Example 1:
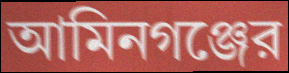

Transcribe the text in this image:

আমিনগঞ্জের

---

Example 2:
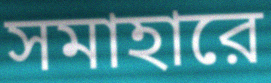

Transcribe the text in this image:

সমাহারে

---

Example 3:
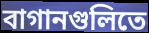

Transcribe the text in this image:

বাগানগুলিতে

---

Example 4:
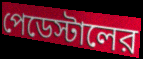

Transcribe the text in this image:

পেডেস্টালের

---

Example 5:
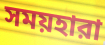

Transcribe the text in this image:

সময়হারা